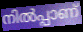
നിൽപ്പാണ്